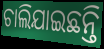
ଚାଲିଯାଇଛନ୍ତି